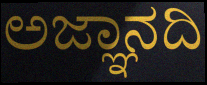
ಅಜ್ಞಾನದಿ